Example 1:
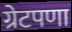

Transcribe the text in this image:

ग्रेटपणा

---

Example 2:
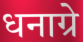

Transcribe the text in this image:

धनाग्रे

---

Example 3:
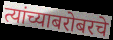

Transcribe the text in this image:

त्यांच्याबरोबरचे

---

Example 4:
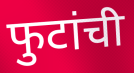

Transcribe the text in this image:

फुटांची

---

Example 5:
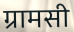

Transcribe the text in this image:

ग्रामसी